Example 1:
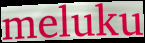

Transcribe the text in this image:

meluku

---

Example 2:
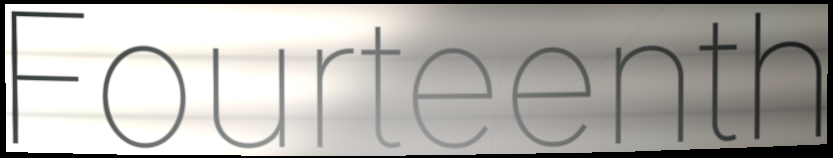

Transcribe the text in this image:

Fourteenth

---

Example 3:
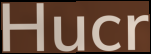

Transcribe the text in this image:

Hucr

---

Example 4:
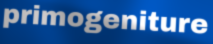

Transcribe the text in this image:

primogeniture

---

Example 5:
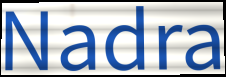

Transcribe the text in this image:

Nadra